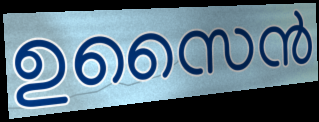
ഉസൈൻ